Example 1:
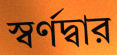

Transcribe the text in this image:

স্বর্ণদ্বার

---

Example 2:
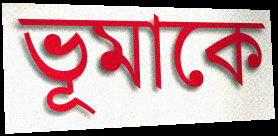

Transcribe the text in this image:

ভূমাকে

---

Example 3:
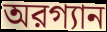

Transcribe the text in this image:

অরগ্যান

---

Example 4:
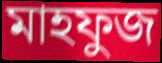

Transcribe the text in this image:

মাহফুজ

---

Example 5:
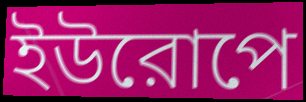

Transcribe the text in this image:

ইউরোপে